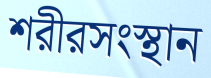
শরীরসংস্থান